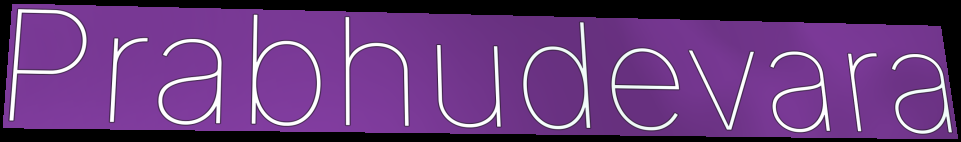
Prabhudevara